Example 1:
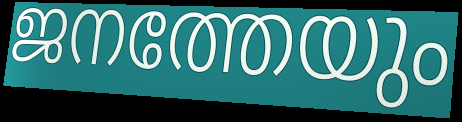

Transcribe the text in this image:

ജനത്തേയും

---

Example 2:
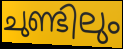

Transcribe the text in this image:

ചുണ്ടിലും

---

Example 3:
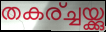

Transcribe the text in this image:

തകര്ച്ചയ്ക്കു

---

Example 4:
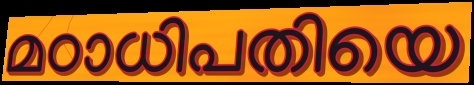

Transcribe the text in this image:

മഠാധിപതിയെ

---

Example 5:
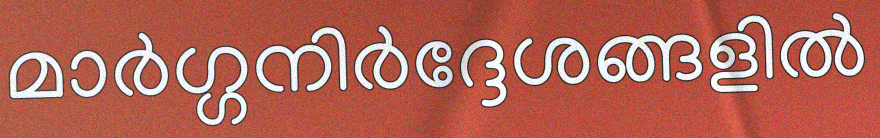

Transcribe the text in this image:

മാർഗ്ഗനിർദ്ദേശങ്ങളിൽ